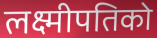
लक्ष्मीपतिको